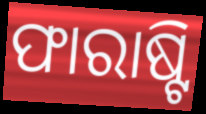
ଫାରାଷ୍ଟି